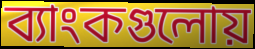
ব্যাংকগুলোয়